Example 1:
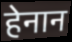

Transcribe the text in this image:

हेनान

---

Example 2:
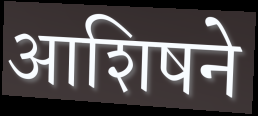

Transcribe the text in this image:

आशिषने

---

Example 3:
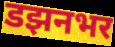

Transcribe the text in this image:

डझनभर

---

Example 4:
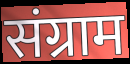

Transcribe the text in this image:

संग्राम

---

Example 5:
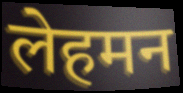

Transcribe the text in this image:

लेहमन